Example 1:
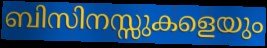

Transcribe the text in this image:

ബിസിനസ്സുകളെയും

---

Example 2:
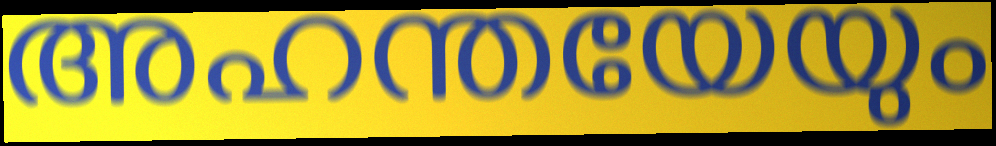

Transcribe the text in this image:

അഹന്തയേയും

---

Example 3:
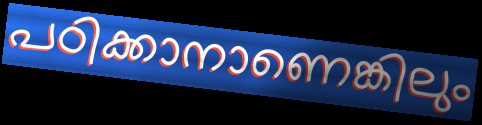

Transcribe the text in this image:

പഠിക്കാനാണെങ്കിലും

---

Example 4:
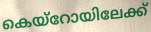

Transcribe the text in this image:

കെയ്റോയിലേക്ക്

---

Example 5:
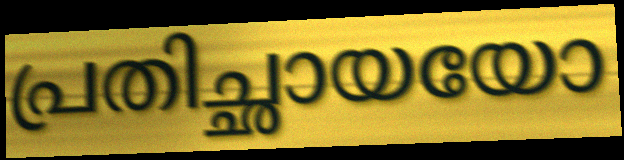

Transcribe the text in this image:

പ്രതിച്ഛായയോ